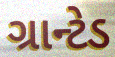
ગ્રાન્ટેડ